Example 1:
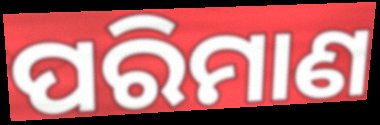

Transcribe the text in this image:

ପରିମାଣ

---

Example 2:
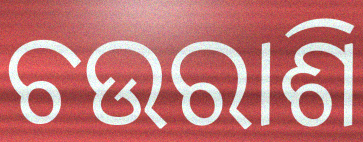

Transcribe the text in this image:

ଚଉରାଶି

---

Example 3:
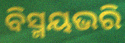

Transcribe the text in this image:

ବିସ୍ମୟଭରି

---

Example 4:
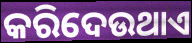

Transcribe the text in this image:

କରିଦେଉଥାଏ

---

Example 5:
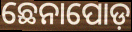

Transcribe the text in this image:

ଛେନାପୋଡ଼